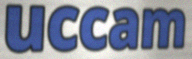
uccam